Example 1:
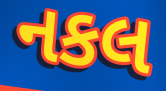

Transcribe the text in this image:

નકલ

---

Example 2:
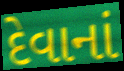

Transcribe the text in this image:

દેવાનાં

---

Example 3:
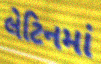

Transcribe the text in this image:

લેટિનમાં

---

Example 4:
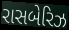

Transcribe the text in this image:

રાસબેરિઝ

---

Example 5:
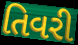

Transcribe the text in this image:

તિવરી